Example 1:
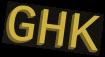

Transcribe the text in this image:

GHK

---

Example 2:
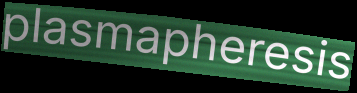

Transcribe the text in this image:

plasmapheresis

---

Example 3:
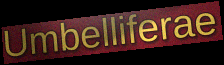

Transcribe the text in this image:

Umbelliferae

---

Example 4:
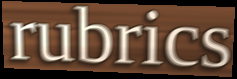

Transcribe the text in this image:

rubrics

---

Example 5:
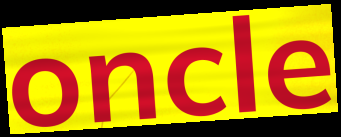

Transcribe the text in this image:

oncle